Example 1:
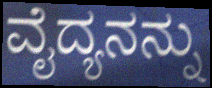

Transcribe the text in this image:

ವೈದ್ಯನನ್ನು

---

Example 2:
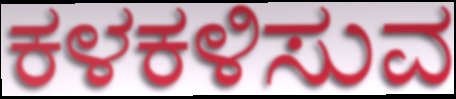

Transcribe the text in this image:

ಕಳಕಳಿಸುವ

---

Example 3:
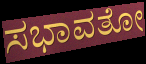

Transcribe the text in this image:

ಸಭಾವತೋ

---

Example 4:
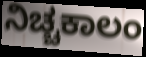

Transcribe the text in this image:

ನಿಚ್ಚಕಾಲಂ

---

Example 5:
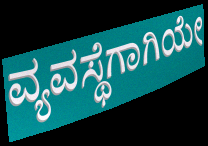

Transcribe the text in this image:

ವ್ಯವಸ್ಥೆಗಾಗಿಯೇ